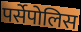
पर्सेपोलिस